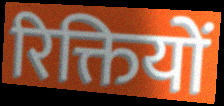
रिक्तियों